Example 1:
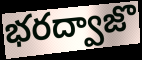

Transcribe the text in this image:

భరద్వాజొ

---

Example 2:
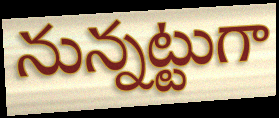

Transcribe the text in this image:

నున్నట్టుగా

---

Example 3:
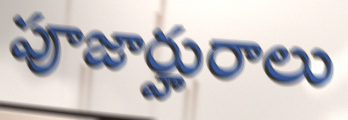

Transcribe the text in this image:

పూజార్హురాలు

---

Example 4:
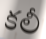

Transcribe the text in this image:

కలీ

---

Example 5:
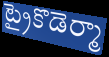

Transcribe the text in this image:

ట్రైకొడెర్మా